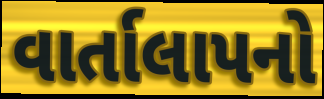
વાર્તાલાપનો